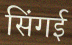
सिंगई